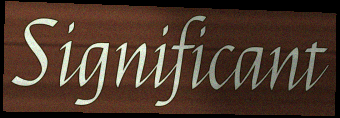
Significant